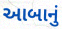
આબાનું